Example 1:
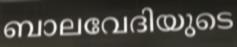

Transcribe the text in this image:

ബാലവേദിയുടെ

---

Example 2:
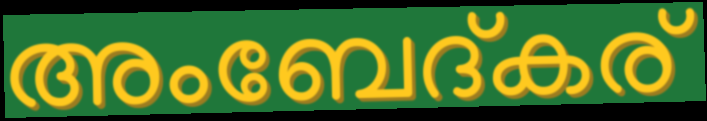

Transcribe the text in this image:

അംബേദ്കര്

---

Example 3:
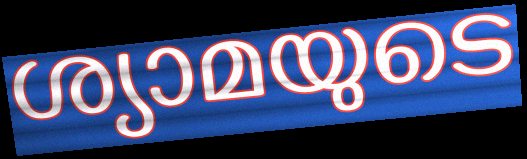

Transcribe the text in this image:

ശ്യാമയുടെ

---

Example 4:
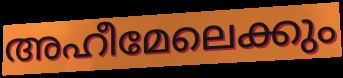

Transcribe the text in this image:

അഹീമേലെക്കും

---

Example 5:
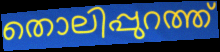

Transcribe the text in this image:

തൊലിപ്പുറത്ത്